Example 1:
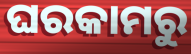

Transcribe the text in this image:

ଘରକାମରୁ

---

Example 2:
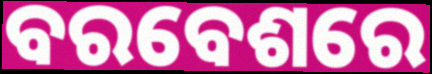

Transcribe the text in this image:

ବରବେଶରେ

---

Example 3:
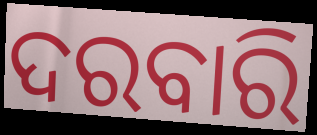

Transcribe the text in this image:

ଦରବାରି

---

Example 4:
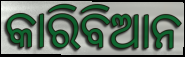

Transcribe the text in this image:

କାରିବିଆନ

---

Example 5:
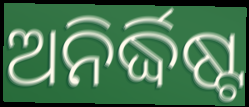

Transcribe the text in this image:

ଅନିର୍ଦ୍ଧିଷ୍ଟ